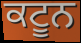
ਕਟੂਨ